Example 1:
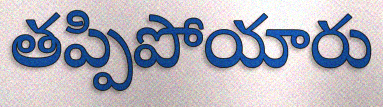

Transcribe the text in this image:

తప్పిపోయారు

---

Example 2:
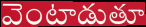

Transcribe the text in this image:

వెంటాడుతూ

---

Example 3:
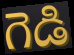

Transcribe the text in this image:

గెడి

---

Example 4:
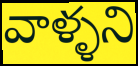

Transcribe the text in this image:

వాళ్ళని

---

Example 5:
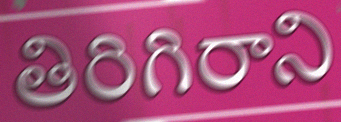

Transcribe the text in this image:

తిరిగిరాని